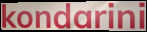
kondarini